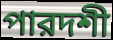
পারদশী